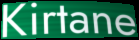
Kirtane